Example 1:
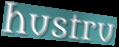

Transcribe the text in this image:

hustru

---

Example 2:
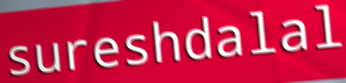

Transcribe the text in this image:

sureshdalal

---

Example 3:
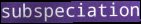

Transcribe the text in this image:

subspeciation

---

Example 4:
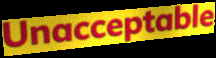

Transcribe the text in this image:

Unacceptable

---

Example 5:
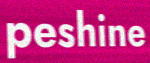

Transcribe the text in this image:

peshine